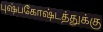
புஷ்பகோஷ்டத்துக்கு